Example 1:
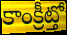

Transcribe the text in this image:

కాంక్రీట్తో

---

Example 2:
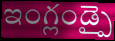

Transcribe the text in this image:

ఇంగ్లండ్పై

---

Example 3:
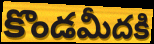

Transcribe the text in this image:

కొండమీదకి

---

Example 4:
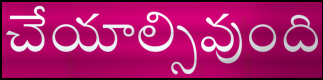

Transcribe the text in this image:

చేయాల్సివుంది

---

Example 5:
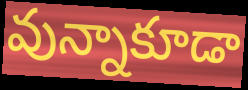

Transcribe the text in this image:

వున్నాకూడా